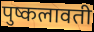
पुष्कलावती